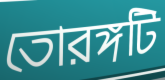
তোরঙ্গটি